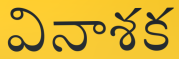
వినాశక